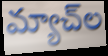
మ్యాచ్‌ల